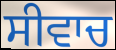
ਸੀਵਾਚ